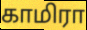
காமிரா